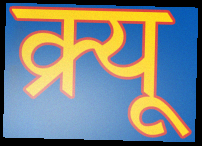
क्र्यू